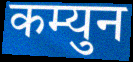
कम्युन